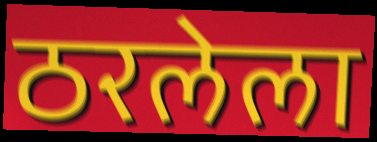
ठरलेला